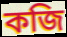
কজি